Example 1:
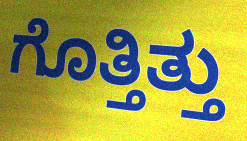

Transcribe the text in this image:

ಗೊತ್ತಿತ್ತು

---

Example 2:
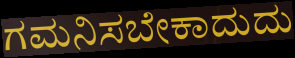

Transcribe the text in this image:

ಗಮನಿಸಬೇಕಾದುದು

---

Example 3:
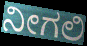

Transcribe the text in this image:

ನೀಗಲಿ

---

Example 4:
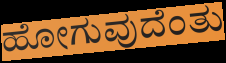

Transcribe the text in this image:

ಹೋಗುವುದೆಂತು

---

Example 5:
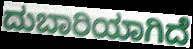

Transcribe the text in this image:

ದುಬಾರಿಯಾಗಿದೆ